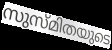
സുസ്മിതയുടെ